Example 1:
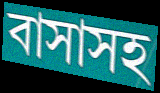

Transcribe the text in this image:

বাসাসহ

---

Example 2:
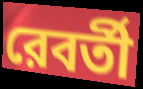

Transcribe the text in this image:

রেবর্তী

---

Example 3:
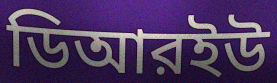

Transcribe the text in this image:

ডিআরইউ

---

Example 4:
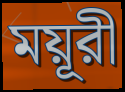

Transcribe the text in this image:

ময়ূরী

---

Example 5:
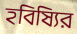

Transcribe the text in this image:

হবিষ্যির